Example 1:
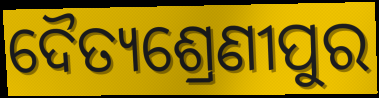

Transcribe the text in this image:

ଦୈତ୍ୟଶ୍ରେଣୀପୁର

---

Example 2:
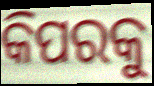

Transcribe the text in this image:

କିପରକୁ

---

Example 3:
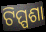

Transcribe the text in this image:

ଟିପ୍ପଶା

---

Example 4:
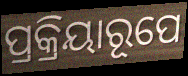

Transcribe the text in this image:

ପ୍ରକ୍ରିୟାରୂପେ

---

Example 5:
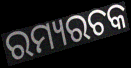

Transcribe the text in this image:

ରମ୍ୟରଚକ